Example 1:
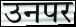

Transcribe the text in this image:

उनपर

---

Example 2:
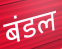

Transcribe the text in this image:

बंडल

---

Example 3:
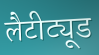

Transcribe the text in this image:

लैटीट्यूड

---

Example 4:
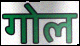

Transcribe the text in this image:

गोल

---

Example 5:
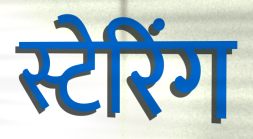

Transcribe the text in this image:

स्टेरिंग